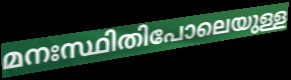
മനഃസ്ഥിതിപോലെയുള്ള